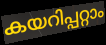
കയറിപ്പറ്റാം